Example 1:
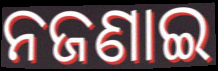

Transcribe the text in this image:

ନଜଣାଇ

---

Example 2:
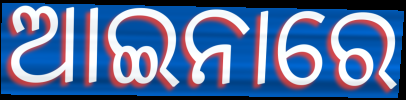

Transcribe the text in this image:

ଆଇନାରେ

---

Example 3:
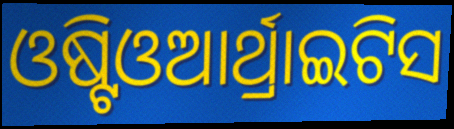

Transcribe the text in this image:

ଓଷ୍ଟିଓଆର୍ଥ୍ରାଇଟିସ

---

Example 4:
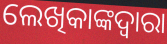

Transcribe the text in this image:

ଲେଖିକାଙ୍କଦ୍ୱାରା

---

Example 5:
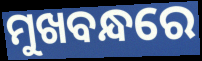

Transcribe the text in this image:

ମୁଖବନ୍ଧରେ